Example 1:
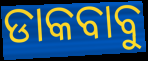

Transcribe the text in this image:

ଡାକବାବୁ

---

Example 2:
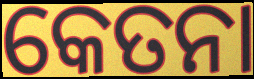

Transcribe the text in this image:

କେତନା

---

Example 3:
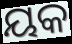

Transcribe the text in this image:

ୟକ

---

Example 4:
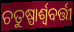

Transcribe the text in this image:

ଚତୁଷ୍ପାର୍ଶ୍ୱବର୍ତ୍ତୀ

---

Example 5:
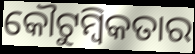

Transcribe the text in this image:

କୌଟୁମ୍ବିକତାର